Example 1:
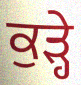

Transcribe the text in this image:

ਕੁੜ੍ਹੇ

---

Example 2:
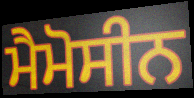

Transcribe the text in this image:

ਮੈਮੋਸੀਨ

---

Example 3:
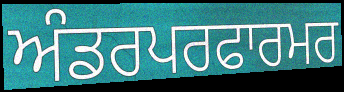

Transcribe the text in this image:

ਅੰਡਰਪਰਫਾਰਮਰ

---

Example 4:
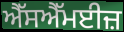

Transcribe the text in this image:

ਐੱਸਐੱਮਈਜ਼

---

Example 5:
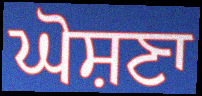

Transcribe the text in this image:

ਘੋਸ਼ਣਾ